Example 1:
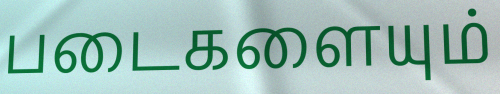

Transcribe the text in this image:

படைகளையும்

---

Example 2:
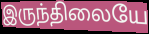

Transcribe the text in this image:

இருந்திலையே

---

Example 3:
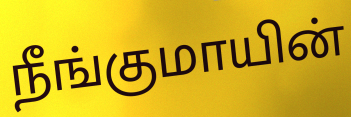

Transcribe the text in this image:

நீங்குமாயின்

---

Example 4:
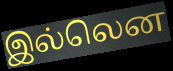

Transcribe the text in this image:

இல்லென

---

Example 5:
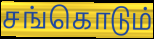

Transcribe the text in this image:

சங்கொடும்